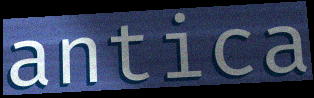
antica